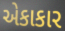
એકાકાર